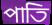
পাতি